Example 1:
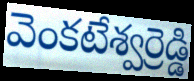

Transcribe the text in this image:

వెంకటేశ్వర్రెడ్డి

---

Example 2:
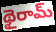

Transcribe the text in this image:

థైరామ్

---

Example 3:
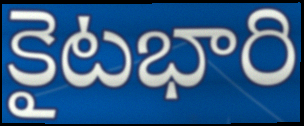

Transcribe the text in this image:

కైటభారి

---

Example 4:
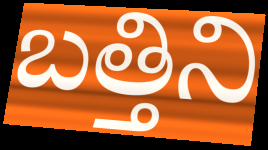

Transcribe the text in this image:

బత్తిని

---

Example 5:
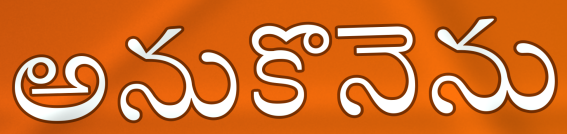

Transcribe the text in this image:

అనుకొనెను